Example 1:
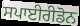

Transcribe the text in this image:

ਸਪਾਈਰੀਡੋਨ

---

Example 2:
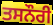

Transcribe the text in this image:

ਤਸਨੌਰੀ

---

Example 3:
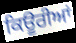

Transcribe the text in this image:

ਕਿਊਰੀਆਂ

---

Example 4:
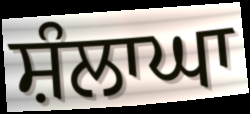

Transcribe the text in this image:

ਸ਼ੰਲਾਘਾ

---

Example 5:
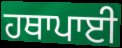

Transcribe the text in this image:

ਹਥਾਪਾਈ